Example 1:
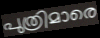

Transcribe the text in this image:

പുത്രിമാരെ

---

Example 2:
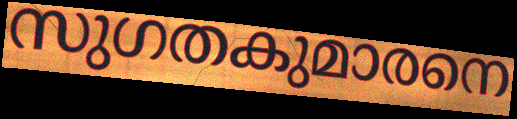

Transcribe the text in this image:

സുഗതകുമാരനെ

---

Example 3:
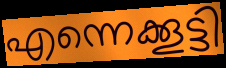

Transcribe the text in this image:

എന്നെക്കൂട്ടി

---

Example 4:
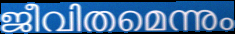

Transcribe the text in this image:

ജീവിതമെന്നും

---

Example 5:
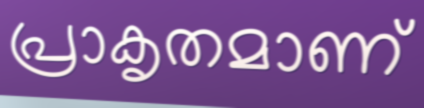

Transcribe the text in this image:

പ്രാകൃതമാണ്